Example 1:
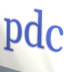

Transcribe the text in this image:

pdc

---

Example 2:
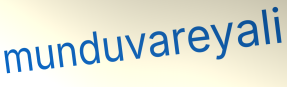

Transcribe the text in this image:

munduvareyali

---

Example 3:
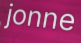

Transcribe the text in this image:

jonne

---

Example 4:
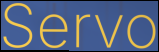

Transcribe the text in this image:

Servo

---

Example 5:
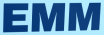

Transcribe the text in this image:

EMM